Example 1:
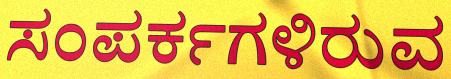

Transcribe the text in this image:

ಸಂಪರ್ಕಗಳಿರುವ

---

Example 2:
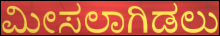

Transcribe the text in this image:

ಮೀಸಲಾಗಿಡಲು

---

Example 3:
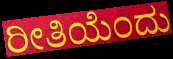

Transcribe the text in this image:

ರೀತಿಯೆಂದು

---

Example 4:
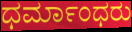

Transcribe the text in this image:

ಧರ್ಮಾಂಧರು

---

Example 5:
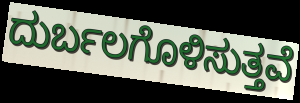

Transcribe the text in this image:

ದುರ್ಬಲಗೊಳಿಸುತ್ತವೆ